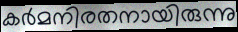
കർമനിരതനായിരുന്നു